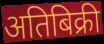
अतिबिक्री